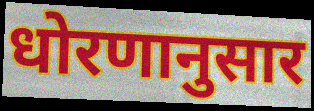
धोरणानुसार